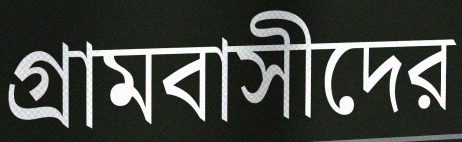
গ্রামবাসীদের